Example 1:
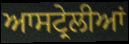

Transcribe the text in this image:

ਆਸਟ੍ਰੇਲੀਆਂ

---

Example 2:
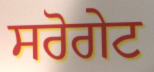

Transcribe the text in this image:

ਸਰੋਗੇਟ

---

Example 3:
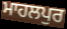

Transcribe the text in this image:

ਮਾਹਲਪੁਰ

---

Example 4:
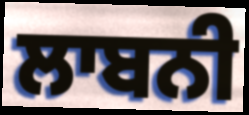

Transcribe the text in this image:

ਲਾਬਨੀ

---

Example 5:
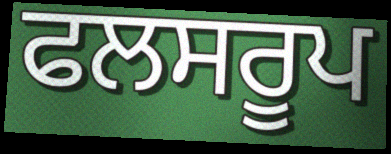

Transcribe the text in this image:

ਫਲਸਰੂਪ